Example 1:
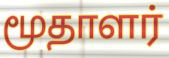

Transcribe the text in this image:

மூதாளர்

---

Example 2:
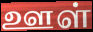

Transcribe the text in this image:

ஊள்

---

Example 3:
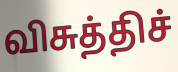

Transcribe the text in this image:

விசுத்திச்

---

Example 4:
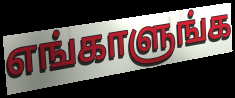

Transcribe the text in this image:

எங்காளுங்க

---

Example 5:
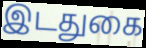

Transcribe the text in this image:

இடதுகை